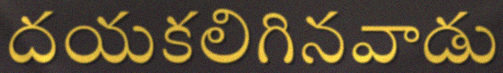
దయకలిగినవాడు